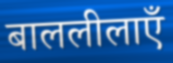
बाललीलाएँ